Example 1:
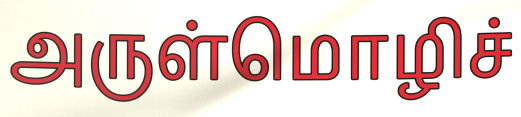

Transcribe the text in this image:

அருள்மொழிச்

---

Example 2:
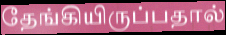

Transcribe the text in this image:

தேங்கியிருப்பதால்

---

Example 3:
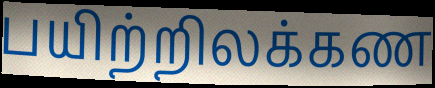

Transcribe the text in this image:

பயிற்றிலக்கண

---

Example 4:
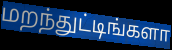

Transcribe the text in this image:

மறந்துட்டிங்களா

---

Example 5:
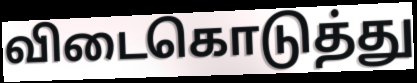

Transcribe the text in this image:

விடைகொடுத்து